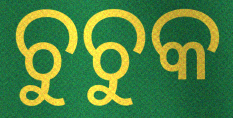
ଚୁଚୁକ